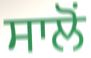
ਸਾਲੋਂ